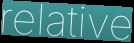
relative